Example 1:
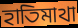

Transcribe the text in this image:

হাতিমাথা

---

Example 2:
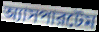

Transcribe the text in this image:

অ্যাসপারটেম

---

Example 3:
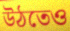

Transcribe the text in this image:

উঠতেও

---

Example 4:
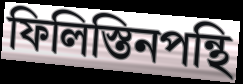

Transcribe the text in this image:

ফিলিস্তিনপন্থি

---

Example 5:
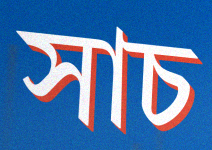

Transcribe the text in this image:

সাচ